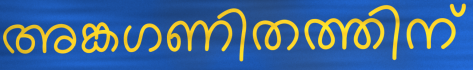
അങ്കഗണിതത്തിന്